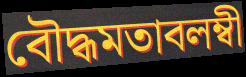
বৌদ্ধমতাবলম্বী